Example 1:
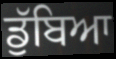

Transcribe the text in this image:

ਡੁੱਬਿਆ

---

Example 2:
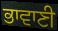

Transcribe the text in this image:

ਭਾਵਾਣੀ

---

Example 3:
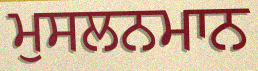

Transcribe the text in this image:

ਮੁਸਲਨਮਾਨ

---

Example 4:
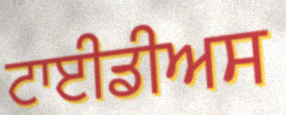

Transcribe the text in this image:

ਟਾਈਡੀਅਸ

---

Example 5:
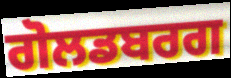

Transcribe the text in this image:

ਗੋਲਡਬਰਗ